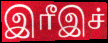
இரீஇச்